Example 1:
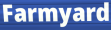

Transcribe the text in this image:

Farmyard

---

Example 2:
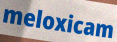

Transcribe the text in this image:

meloxicam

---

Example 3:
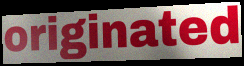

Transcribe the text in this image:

originated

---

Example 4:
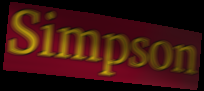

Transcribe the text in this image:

Simpson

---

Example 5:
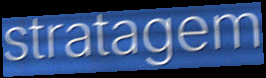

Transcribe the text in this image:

stratagem